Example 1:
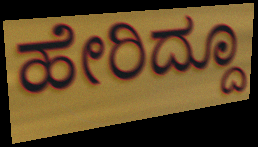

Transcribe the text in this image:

ಹೇರಿದ್ದೂ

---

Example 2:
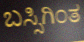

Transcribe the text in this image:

ಬಸ್ಸಿಗಿಂತ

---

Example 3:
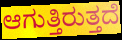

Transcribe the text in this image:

ಆಗುತ್ತಿರುತ್ತದೆ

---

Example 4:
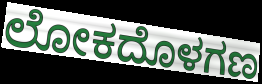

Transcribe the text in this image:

ಲೋಕದೊಳಗಣ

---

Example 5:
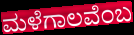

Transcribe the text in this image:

ಮಳೆಗಾಲವೆಂಬ